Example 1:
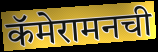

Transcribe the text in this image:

कॅमेरामनची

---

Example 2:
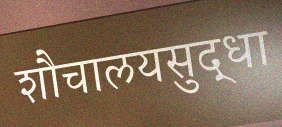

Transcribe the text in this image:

शौचालयसुद्धा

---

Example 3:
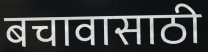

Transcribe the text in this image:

बचावासाठी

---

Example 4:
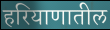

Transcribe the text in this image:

हरियाणातील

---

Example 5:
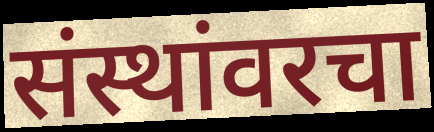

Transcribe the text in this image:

संस्थांवरचा